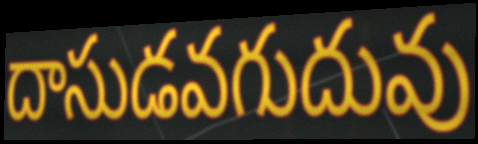
దాసుడవగుదువు